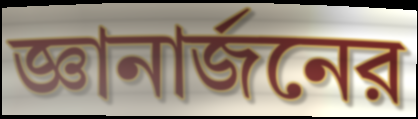
জ্ঞানার্জনের